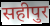
सहीपुर